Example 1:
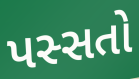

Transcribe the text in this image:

પસ્સતો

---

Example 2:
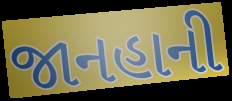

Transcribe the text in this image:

જાનહાની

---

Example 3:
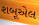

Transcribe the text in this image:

શબૂએલ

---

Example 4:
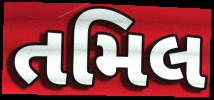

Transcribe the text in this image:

તમિલ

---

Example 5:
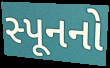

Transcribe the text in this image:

સ્પૂનનો